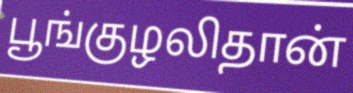
பூங்குழலிதான்